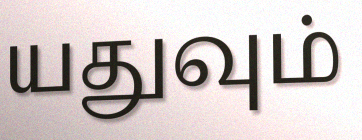
யதுவும்